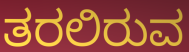
ತರಲಿರುವ